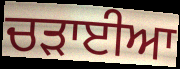
ਚੜਾਈਆ